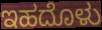
ಇಹದೊಳು